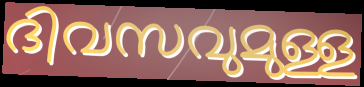
ദിവസവുമുള്ള